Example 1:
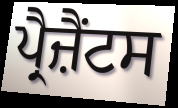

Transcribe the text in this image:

ਪ੍ਰੈਜ਼ੈਂਟਸ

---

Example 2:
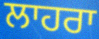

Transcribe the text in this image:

ਲਾਹਰਾ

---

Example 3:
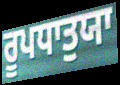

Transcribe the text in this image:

ਰੂਪਧਾਤੁਯਾ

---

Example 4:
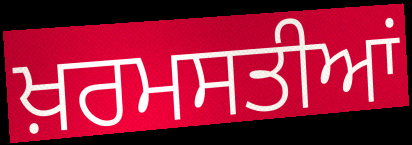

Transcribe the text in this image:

ਖ਼ਰਮਸਤੀਆਂ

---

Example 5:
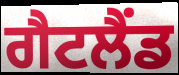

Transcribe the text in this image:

ਗੈਟਲੈਂਡ